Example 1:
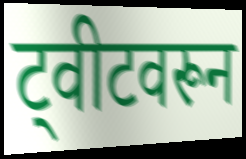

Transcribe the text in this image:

ट्वीटवरून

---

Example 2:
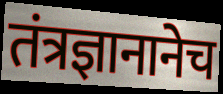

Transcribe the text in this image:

तंत्रज्ञानानेच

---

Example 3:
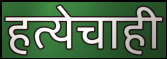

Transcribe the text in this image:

हत्येचाही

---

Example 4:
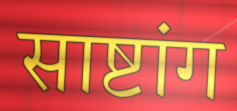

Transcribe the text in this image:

साष्टांग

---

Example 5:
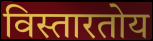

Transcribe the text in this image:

विस्तारतोय